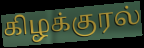
கிழக்குரல்